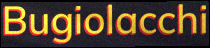
Bugiolacchi